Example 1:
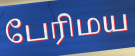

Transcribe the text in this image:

பேரிமய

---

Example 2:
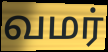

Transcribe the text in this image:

வமர்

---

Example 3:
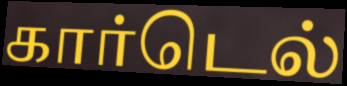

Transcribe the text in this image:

கார்டெல்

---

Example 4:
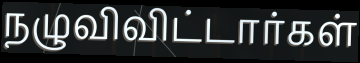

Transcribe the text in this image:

நழுவிவிட்டார்கள்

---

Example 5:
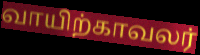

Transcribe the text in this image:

வாயிற்காவலர்